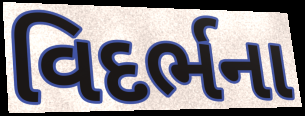
વિદર્ભના